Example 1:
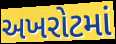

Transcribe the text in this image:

અખરોટમાં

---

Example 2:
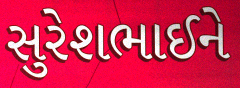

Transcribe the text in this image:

સુરેશભાઈને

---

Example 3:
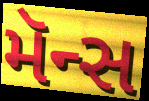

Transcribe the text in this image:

મૅન્સ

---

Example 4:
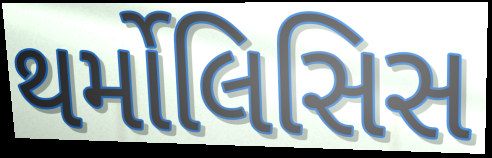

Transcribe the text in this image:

થર્મોલિસિસ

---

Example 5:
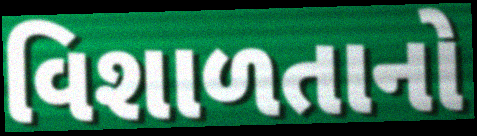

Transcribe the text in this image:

વિશાળતાનો